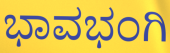
ಭಾವಭಂಗಿ